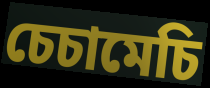
চেচামেচি